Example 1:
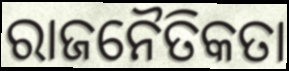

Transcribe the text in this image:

ରାଜନୈତିକତା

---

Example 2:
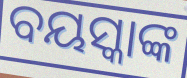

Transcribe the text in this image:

ବୟସ୍କାଙ୍କ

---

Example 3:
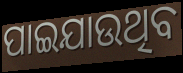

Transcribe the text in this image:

ପାଇଯାଉଥିବ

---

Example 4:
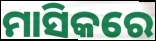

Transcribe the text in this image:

ମାସିକରେ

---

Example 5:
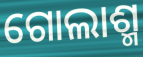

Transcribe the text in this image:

ଗୋଲାଶ୍ମ